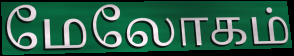
மேலோகம்